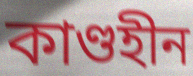
কাণ্ডহীন